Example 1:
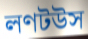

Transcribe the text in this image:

লণটউস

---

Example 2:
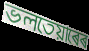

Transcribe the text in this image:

ভলতেয়াৰেৰ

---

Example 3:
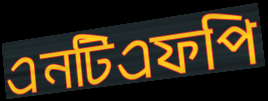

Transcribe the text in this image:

এনটিএফপি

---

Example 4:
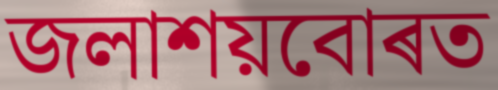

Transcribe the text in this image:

জলাশয়বোৰত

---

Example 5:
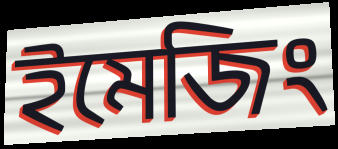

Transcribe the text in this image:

ইমেজিং